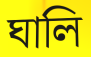
ঘালি